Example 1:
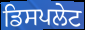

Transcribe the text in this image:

ਡਿਸਪਲੇਟ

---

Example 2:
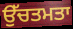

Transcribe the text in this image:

ਉੱਚਤਮਤਾ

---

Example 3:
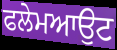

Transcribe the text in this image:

ਫਲੇਮਆਉਟ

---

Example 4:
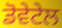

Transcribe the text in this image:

ਡੋਵੇਟੇਲ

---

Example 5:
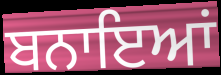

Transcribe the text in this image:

ਬਨਾਇਆਂ